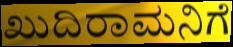
ಖುದಿರಾಮನಿಗೆ